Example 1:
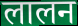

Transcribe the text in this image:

लालन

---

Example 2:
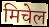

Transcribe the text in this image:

मिचेल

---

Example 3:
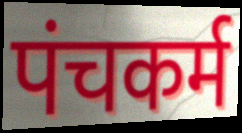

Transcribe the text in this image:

पंचकर्म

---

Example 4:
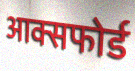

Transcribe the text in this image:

आक्सफोर्ड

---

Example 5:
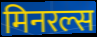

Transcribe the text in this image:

मिनरल्स